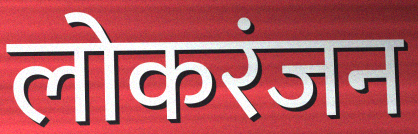
लोकरंजन